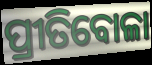
ପ୍ରୀତିବୋଳା